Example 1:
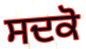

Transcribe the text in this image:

ਸਦਕੋ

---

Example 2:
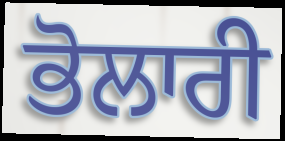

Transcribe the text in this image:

ਭੋਲਾਰੀ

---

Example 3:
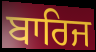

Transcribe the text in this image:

ਬਾਰਿਜ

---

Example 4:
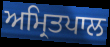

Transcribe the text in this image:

ਅਮ੍ਰਿਤਪਾਲ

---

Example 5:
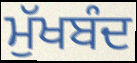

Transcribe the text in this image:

ਮੁੱਖਬੰਦ